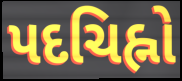
પદચિહ્નો